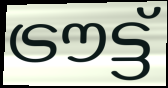
ട്രൗട്ട്